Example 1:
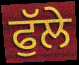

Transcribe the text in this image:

ਫੁੱਲੇ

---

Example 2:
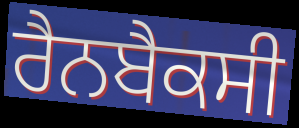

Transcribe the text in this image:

ਰੈਨਬੈਕਸੀ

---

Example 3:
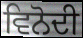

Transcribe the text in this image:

ਵਿਨੋਦੀ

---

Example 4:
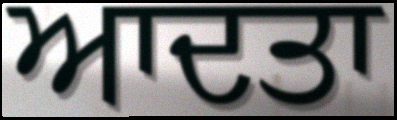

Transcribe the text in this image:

ਆਦਤਾ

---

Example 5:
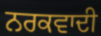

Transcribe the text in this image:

ਨਰਕਵਾਦੀ